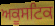
ਅਕੂਸਟਿਕ